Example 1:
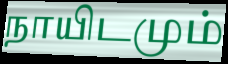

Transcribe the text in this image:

நாயிடமும்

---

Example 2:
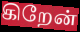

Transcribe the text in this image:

கிறேன்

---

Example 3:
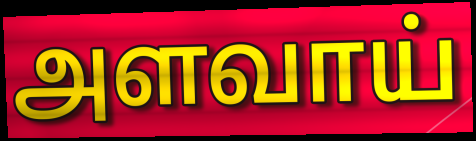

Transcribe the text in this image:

அளவாய்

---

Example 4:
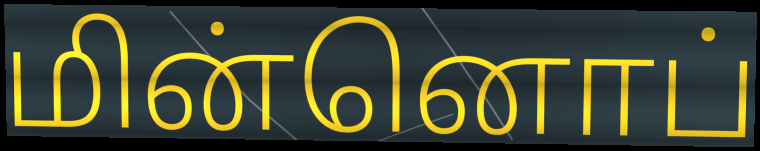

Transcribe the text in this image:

மின்னொப்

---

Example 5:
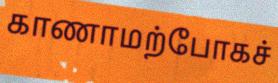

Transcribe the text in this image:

காணாமற்போகச்